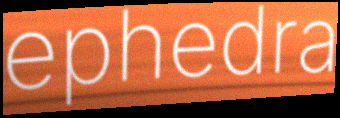
ephedra